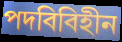
পদবিবিহীন